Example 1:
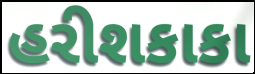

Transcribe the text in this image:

હરીશકાકા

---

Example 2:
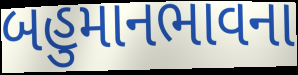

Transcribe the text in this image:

બહુમાનભાવના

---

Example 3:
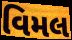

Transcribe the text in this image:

વિમલ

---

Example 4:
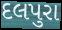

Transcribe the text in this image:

દલપુરા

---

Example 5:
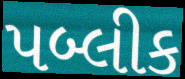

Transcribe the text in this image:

પબ્લીક